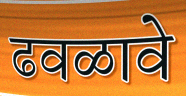
ढवळावे